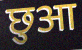
छुआ